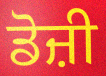
ਡੋਜ਼ੀ